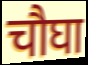
चौघा